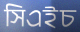
সিএইচ